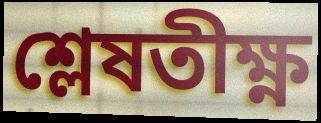
শ্লেষতীক্ষ্ণ